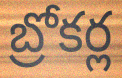
బ్రోకర్ల